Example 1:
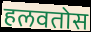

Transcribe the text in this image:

हलवतोस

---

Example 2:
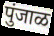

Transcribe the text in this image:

पुंजाळ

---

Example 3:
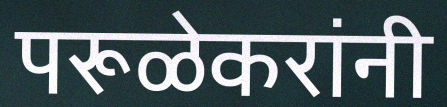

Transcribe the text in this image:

परूळेकरांनी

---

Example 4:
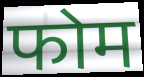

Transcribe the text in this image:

फोम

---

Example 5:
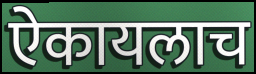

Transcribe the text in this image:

ऐकायलाच